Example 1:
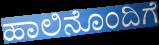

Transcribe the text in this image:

ಹಾಲಿನೊಂದಿಗೆ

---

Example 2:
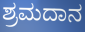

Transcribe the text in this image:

ಶ್ರಮದಾನ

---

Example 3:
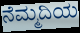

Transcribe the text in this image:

ನೆಮ್ಮದಿಯ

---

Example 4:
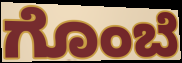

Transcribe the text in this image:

ಗೊಂಬೆ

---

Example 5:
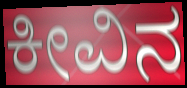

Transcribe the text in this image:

ಕೀವಿನ